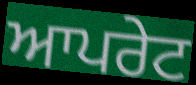
ਆਪਰੇਟ